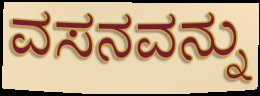
ವಸನವನ್ನು